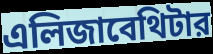
এলিজাবেথিটার